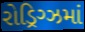
રોડ્રિગ્ઝમાં